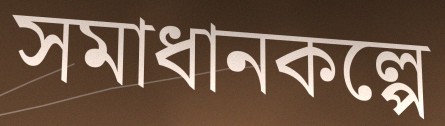
সমাধানকল্পে